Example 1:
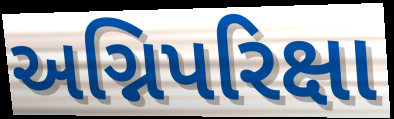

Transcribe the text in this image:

અગ્નિપરિક્ષા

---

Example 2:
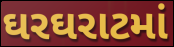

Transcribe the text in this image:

ઘરઘરાટમાં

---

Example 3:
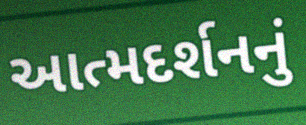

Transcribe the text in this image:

આત્મદર્શનનું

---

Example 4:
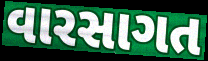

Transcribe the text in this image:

વારસાગત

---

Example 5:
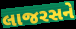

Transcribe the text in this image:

લાજરસને